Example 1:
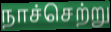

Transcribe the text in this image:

நாச்செற்று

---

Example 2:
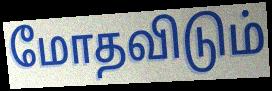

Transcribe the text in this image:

மோதவிடும்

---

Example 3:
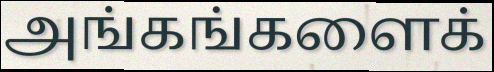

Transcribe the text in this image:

அங்கங்களைக்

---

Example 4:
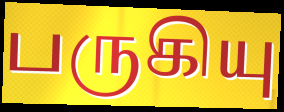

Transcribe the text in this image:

பருகியு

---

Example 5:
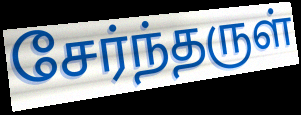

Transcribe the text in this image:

சேர்ந்தருள்